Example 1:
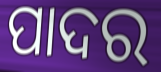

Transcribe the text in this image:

ପାଦର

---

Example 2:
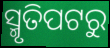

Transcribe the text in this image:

ସ୍ମୃତିପଟରୁ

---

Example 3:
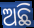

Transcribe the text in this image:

ଅଛି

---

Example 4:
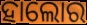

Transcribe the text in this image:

ହାଲୋର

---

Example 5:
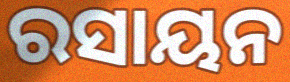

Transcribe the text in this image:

ରସାୟନ